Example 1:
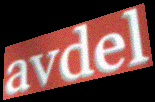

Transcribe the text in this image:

avdel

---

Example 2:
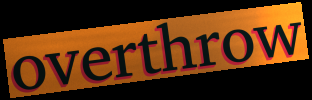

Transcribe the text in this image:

overthrow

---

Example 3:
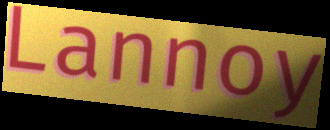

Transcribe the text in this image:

Lannoy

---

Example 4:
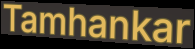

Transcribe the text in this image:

Tamhankar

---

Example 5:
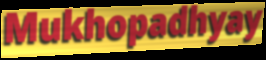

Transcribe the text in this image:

Mukhopadhyay